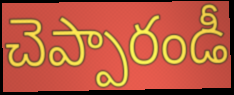
చెప్పారండీ